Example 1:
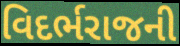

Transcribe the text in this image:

વિદર્ભરાજની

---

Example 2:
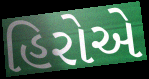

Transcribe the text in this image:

હિરોએ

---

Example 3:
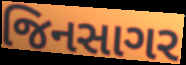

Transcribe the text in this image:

જિનસાગર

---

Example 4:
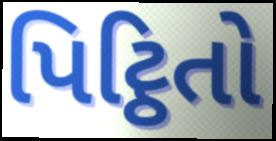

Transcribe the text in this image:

પિટ્ઠિતો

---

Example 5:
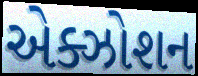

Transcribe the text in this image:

એક્ઝોશન